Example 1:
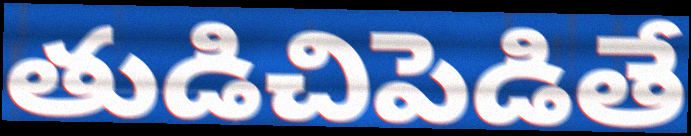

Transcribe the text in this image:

తుడిచిపెడితే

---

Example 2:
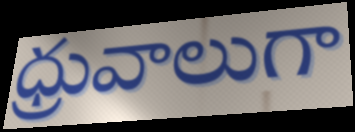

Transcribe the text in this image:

ధ్రువాలుగా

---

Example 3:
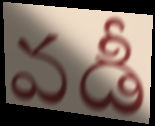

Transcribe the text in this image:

వడీ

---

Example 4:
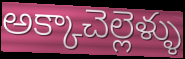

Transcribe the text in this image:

అక్కాచెల్లెళ్ళు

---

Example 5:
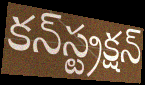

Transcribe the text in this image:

కన్‍స్ట్రక్షన్